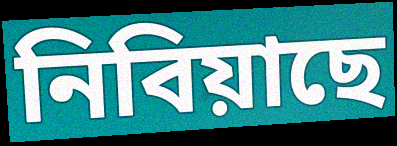
নিবিয়াছে